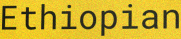
Ethiopian